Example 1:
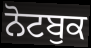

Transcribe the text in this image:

ਨੋਟਬੁਕ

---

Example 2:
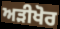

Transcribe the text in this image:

ਅੜੀਖੋਰ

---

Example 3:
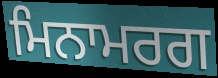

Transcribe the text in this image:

ਮਿਨਾਮਰਗ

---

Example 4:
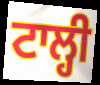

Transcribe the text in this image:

ਟਾਲ੍ਹੀ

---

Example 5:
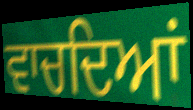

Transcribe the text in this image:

ਵਾਚਦਿਆਂ